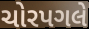
ચોરપગલે